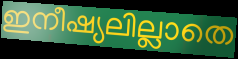
ഇനീഷ്യലില്ലാതെ